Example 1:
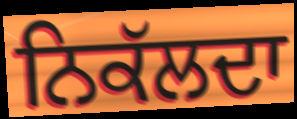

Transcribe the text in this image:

ਨਿਕੱਲਦਾ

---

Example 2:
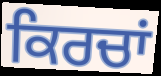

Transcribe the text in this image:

ਕਿਰਚਾਂ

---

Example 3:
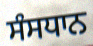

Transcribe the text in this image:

ਸੰਸਧਾਨ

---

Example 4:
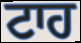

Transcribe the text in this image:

ਟਾਹ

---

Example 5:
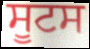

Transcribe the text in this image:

ਸੂਟਸ